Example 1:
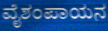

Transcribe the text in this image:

ವೈಶಂಪಾಯನ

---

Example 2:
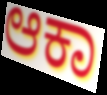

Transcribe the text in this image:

ಆಕಾ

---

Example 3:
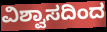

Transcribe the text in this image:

ವಿಶ್ವಾಸದಿಂದ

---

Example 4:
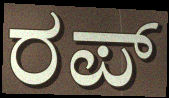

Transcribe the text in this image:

ರಪ್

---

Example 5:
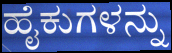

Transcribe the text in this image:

ಹೈಕುಗಳನ್ನು